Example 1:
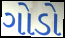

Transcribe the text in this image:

ગોડો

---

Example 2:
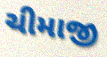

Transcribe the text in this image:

ચીમાજી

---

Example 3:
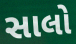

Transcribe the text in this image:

સાલો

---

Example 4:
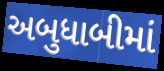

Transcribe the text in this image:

અબુધાબીમાં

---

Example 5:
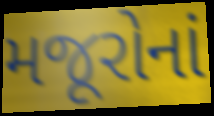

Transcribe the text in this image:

મજૂરોનાં